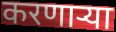
करणाऱ्या